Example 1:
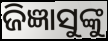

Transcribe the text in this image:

ଜିଜ୍ଞାସୁଙ୍କୁ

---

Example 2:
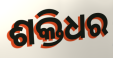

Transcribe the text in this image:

ଶକ୍ତିଧର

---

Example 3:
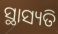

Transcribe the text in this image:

ସ୍ଥାସ୍ୟତି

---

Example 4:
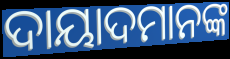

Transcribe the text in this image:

ଦାୟାଦମାନଙ୍କ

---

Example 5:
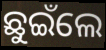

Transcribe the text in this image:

ଛୁଇଁଲେ